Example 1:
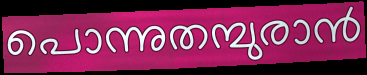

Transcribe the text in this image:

പൊന്നുതമ്പുരാൻ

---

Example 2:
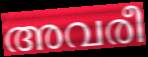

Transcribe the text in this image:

അവരീ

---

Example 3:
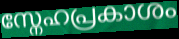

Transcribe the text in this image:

സ്നേഹപ്രകാശം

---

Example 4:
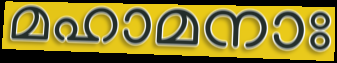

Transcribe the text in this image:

മഹാമനാഃ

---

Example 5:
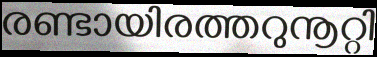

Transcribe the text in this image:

രണ്ടായിരത്തറുനൂറ്റി